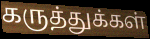
கருத்துக்கள்